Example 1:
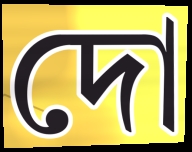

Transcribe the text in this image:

দো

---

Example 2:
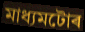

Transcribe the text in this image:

মাধ্যমটোৰ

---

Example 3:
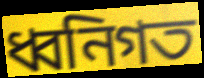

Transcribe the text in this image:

ধ্বনিগত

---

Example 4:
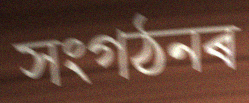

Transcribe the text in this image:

সংগঠনৰ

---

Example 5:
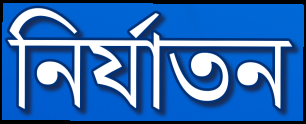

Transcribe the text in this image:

নিৰ্যাতন